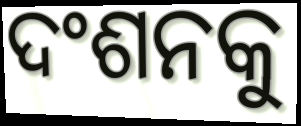
ଦଂଶନକୁ